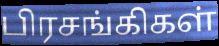
பிரசங்கிகள்